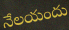
నేలయందు